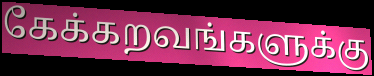
கேக்கறவங்களுக்கு